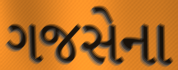
ગજસેના